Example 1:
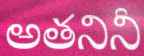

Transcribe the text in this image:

అతనినీ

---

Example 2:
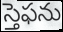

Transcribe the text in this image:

స్తెఫను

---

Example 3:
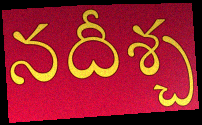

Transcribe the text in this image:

నదీశ్చ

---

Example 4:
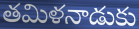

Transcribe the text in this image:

తమిళనాడుకు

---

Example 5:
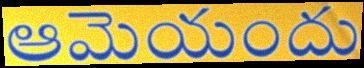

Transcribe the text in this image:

ఆమెయందు